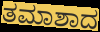
ತಮಾಶಾದ